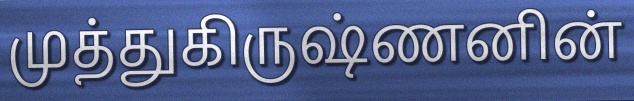
முத்துகிருஷ்ணனின்